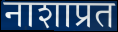
नाशाप्रत